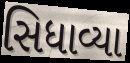
સિધાવ્યા